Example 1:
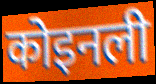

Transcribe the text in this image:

कोइनली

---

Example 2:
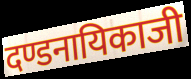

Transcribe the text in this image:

दण्डनायिकाजी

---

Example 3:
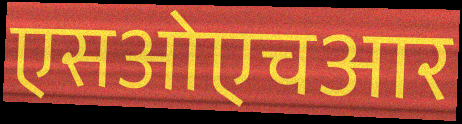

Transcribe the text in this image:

एसओएचआर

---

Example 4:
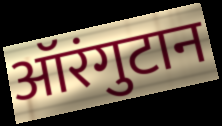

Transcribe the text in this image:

ऑरंगुटान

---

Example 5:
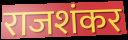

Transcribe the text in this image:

राजशंकर